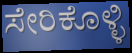
ಸೇರಿಕೊಳ್ಳಿ